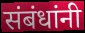
संबंधांनी